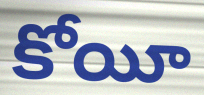
కోయీ